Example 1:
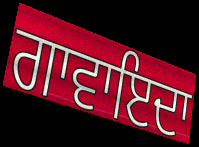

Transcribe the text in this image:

ਗਾਵਾਇਦਾ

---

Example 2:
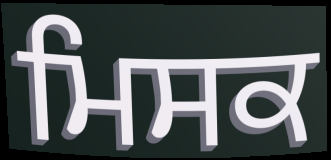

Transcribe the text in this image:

ਮਿਸਕ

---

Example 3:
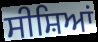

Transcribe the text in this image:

ਸੀਸ਼ਿਆਂ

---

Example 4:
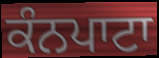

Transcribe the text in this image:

ਕੰਨਪਾਟਾ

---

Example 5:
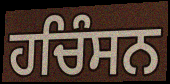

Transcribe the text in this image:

ਹਚਿੰਸਨ